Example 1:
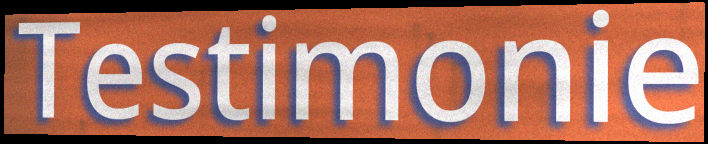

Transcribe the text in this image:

Testimonie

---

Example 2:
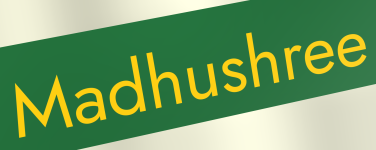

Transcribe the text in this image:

Madhushree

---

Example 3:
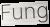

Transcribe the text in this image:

Fung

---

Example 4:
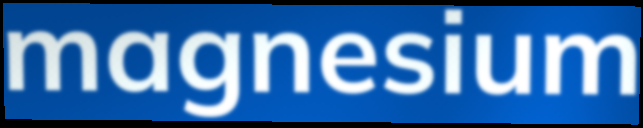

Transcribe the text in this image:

magnesium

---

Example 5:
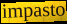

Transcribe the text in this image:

impasto